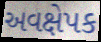
અવક્ષેપક